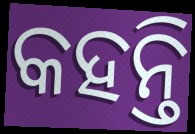
କହନ୍ତି